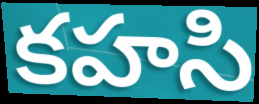
కహసి